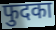
फुदका